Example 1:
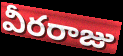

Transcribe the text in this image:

వీరరాజు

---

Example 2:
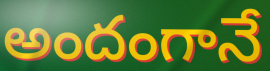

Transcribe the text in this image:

అందంగానే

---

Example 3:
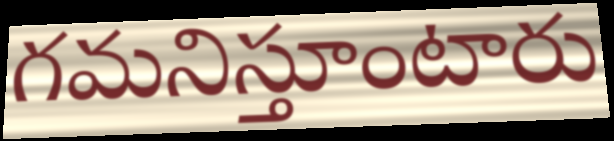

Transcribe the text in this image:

గమనిస్తూంటారు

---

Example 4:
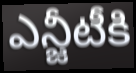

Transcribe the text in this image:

ఎన్జీటీకి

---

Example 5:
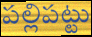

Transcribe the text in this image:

పల్లిపట్టు